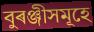
বুৰঞ্জীসমূহে